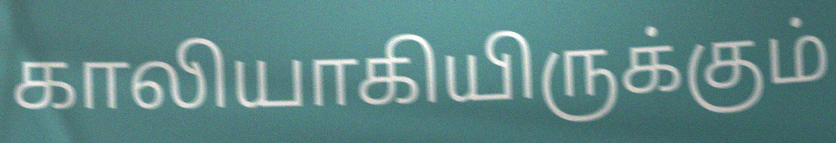
காலியாகியிருக்கும்